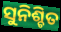
ସୁନିଶ୍ଚିତ